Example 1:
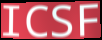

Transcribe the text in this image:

ICSF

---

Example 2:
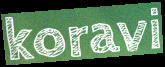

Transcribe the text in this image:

koravi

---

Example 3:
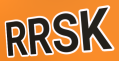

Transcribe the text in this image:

RRSK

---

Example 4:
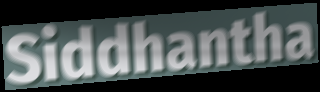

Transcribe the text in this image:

Siddhantha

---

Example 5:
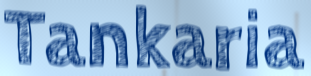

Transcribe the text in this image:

Tankaria